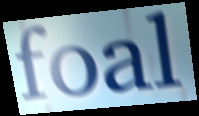
foal